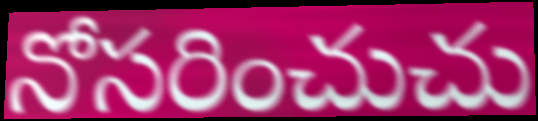
నోసరించుచు